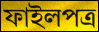
ফাইলপত্র